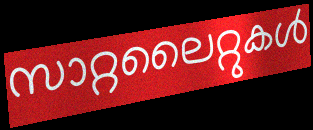
സാറ്റലൈറ്റുകൾ